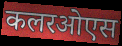
कलरओएस